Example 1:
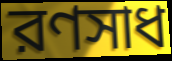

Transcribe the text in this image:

রণসাধ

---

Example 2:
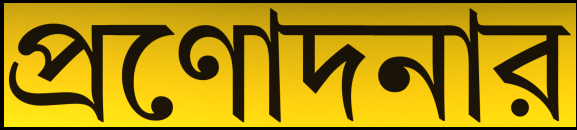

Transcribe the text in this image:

প্রণোদনার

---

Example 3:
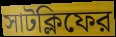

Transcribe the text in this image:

সাটক্লিফের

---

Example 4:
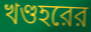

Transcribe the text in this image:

খণ্ডহরের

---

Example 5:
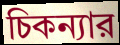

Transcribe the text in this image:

চিকন্যার